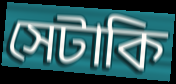
সেটাকি